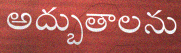
అద్బుతాలను